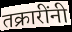
तक्रारींनी